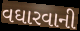
વઘારવાની